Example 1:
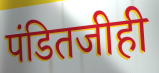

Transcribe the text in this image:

पंडितजीही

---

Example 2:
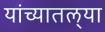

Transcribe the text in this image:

यांच्यातल्या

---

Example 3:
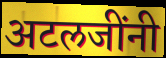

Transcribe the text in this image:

अटलजींनी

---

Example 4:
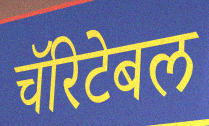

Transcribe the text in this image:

चॅरिटेबल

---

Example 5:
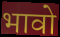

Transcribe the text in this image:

भावो